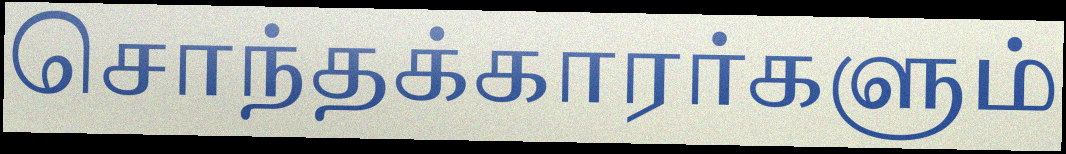
சொந்தக்காரர்களும்